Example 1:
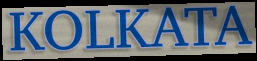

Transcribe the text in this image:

KOLKATA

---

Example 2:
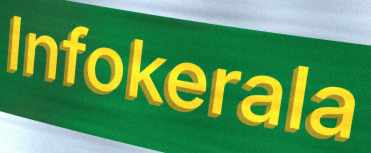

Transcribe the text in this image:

Infokerala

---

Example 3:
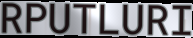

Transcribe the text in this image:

RPUTLURI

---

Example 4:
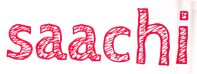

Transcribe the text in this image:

saachi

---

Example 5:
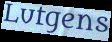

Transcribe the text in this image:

Lutgens